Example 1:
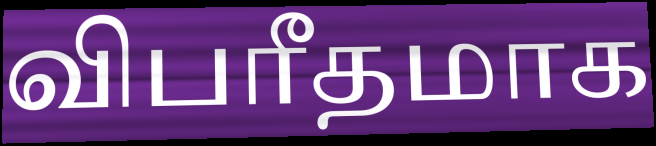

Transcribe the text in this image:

விபரீதமாக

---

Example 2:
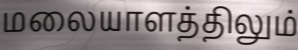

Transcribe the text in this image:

மலையாளத்திலும்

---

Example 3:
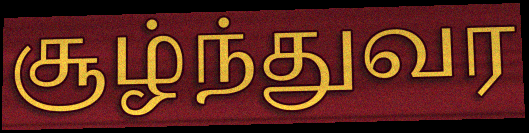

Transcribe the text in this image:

சூழ்ந்துவர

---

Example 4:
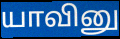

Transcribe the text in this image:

யாவினு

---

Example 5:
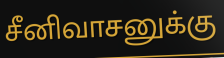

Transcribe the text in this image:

சீனிவாசனுக்கு